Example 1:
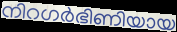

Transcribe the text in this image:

നിറഗർഭിണിയായ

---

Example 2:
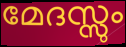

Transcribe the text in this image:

മേദസ്സും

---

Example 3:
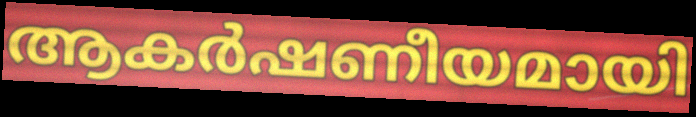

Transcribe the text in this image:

ആകർഷണീയമായി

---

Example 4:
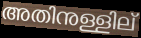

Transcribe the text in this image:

അതിനുള്ളില്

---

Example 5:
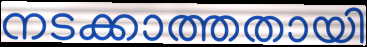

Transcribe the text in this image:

നടക്കാത്തതായി